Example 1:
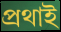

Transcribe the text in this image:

প্ৰথাই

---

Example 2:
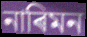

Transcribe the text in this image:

নাৰিমন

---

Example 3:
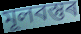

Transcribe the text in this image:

মূলবস্তুৰ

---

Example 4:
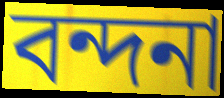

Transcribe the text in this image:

বন্দনা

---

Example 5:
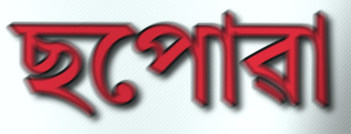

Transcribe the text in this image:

ছপোৱা